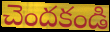
చెందకండి